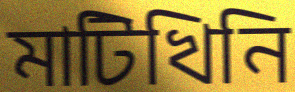
মাটিখিনি